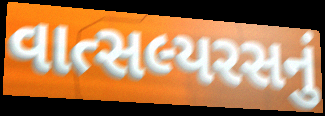
વાત્સલ્યરસનું